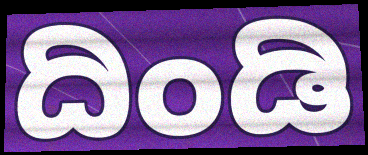
ದಿಂಡಿ